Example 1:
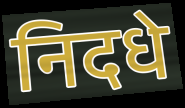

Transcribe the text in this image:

निदधे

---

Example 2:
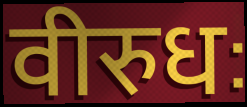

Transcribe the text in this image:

वीरुधः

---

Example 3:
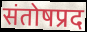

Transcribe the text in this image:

संतोषप्रद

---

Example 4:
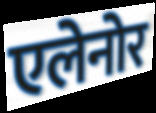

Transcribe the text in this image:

एलेनोर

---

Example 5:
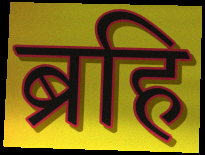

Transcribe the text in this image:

ब्रहि